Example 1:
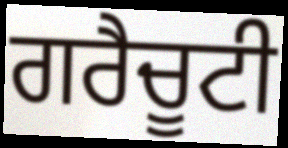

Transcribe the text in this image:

ਗਰੈਚੂਟੀ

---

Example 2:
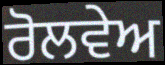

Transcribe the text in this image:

ਰੋਲਵੇਅ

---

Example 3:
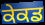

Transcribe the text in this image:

ਕੇਕਡ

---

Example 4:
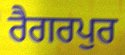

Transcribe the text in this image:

ਰੈਗਰਪੁਰ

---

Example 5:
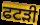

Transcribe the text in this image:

ਫਟੜੀ